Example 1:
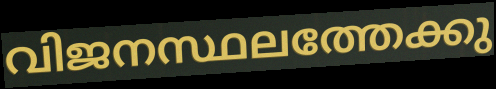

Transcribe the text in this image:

വിജനസ്ഥലത്തേക്കു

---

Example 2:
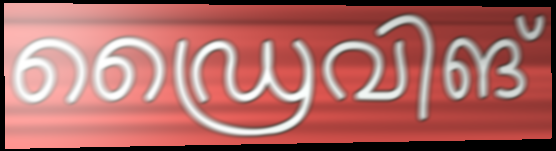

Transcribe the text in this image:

ഡ്രൈവിങ്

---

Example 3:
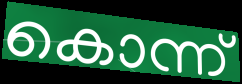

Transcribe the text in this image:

കൊന്ന്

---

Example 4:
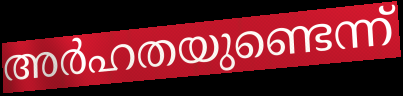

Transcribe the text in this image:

അർഹതയുണ്ടെന്ന്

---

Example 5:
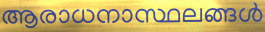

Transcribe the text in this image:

ആരാധനാസ്ഥലങ്ങൾ